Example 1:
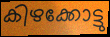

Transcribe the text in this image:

കിഴക്കോട്ടു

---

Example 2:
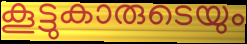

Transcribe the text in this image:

കൂട്ടുകാരുടെയും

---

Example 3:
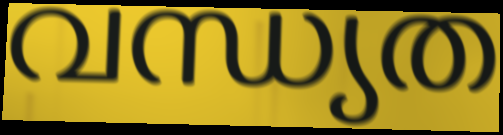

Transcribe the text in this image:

വന്ധ്യത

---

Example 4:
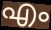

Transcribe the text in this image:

എം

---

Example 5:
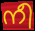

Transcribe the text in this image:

നീ